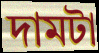
দামটা